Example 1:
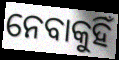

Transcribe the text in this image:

ନେବାକୁହିଁ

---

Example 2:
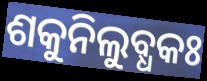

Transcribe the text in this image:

ଶକୁନିଲୁବ୍ଧକଃ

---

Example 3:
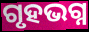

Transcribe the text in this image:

ଗୃହଭଗ୍ନ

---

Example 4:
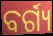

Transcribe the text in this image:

ବର୍ଗ୍ୟ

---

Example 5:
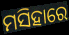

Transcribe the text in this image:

ମସିହାରେ